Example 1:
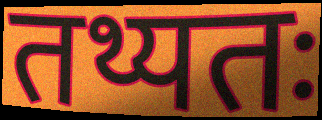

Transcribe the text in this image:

तथ्यतः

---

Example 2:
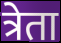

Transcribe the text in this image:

त्रेता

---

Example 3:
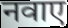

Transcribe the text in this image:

नवाए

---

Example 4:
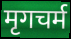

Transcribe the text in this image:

मृगचर्म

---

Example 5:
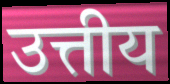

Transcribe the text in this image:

उत्तीय